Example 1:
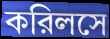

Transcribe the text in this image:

করিলসে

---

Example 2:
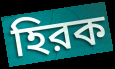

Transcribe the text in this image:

হিরক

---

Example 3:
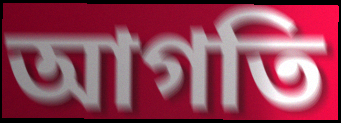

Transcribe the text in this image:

আগতি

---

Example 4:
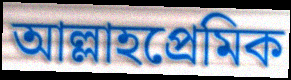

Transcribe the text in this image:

আল্লাহপ্রেমিক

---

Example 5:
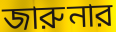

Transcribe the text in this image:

জারুনার